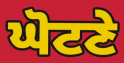
ਘੋਟਣੇ